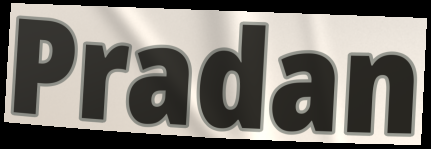
Pradan